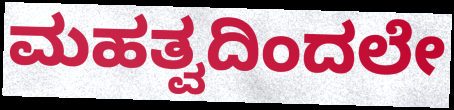
ಮಹತ್ವದಿಂದಲೇ